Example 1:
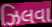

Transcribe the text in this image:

ઝિલવા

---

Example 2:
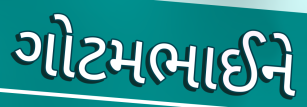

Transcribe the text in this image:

ગોટમભાઈને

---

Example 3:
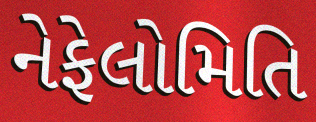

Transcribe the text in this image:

નેફેલોમિતિ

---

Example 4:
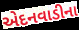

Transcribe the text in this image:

એદનવાડીના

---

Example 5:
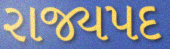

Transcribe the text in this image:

રાજ્યપદ